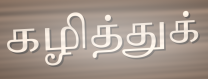
கழித்துக்